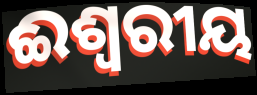
ଈଶ୍ବରୀୟ